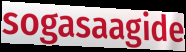
sogasaagide